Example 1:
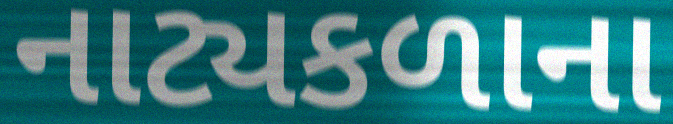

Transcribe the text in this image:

નાટ્યકળાના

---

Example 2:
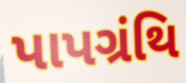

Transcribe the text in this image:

પાપગ્રંથિ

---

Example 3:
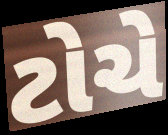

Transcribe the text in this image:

ટોચે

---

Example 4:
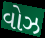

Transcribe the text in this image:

વોઝ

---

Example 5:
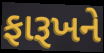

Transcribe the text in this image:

ફારૂખને